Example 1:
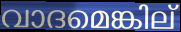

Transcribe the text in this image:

വാദമെങ്കില്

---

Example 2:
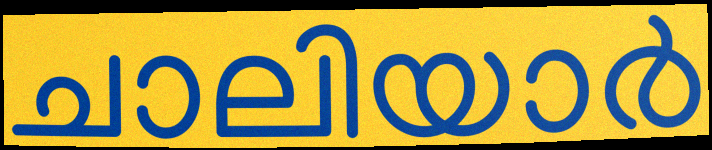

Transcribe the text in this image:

ചാലിയാർ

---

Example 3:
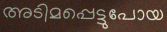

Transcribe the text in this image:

അടിമപ്പെട്ടുപോയ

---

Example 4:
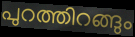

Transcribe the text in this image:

പുറത്തിറങ്ങും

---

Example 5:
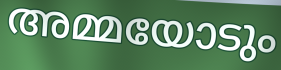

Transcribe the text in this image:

അമ്മയോടും